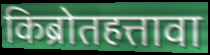
किब्रोतहत्तावा